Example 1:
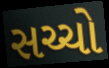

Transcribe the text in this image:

સચ્ચો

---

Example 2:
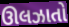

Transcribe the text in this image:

ઊલઝાતો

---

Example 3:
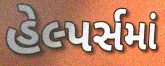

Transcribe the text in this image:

હેલ્પર્સમાં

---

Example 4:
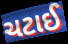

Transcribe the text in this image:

ચટાઈ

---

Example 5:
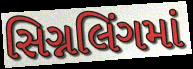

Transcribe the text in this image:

સિગ્નલિંગમાં